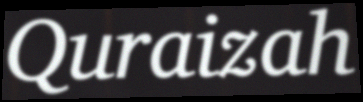
Quraizah